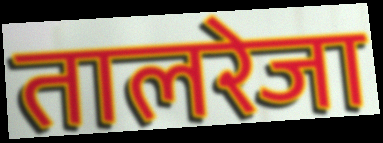
तालरेजा